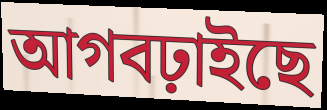
আগবঢ়াইছে